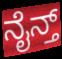
ನೈನ್ತ್